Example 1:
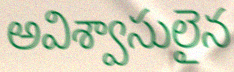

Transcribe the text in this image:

అవిశ్వాసులైన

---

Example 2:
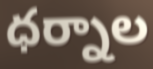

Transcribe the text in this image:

ధర్నాల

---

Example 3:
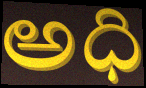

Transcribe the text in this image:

అధి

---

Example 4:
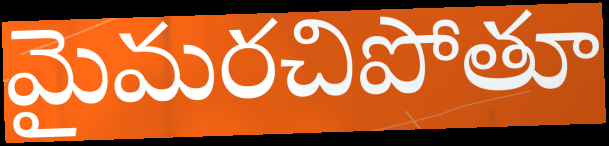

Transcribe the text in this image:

మైమరచిపోతూ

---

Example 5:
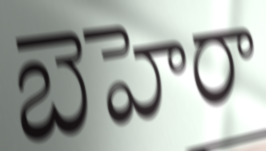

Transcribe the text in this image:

బెహెరా